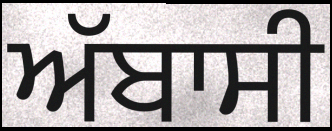
ਅੱਬਾਸੀ